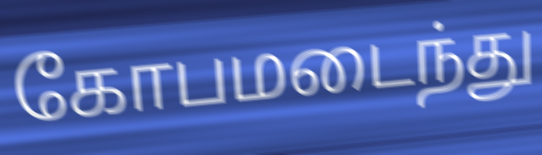
கோபமடைந்து